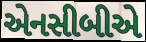
એનસીબીએ